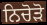
ਨਿਚੋੜੋ